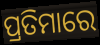
ପ୍ରତିମାରେ